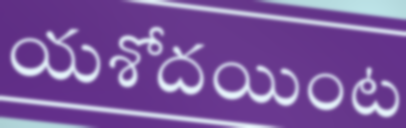
యశోదయింట